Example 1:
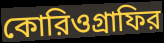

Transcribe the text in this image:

কোরিওগ্রাফির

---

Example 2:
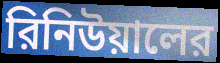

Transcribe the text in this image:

রিনিউয়ালের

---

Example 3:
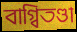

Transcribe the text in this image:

বাগ্বিতণ্ডা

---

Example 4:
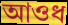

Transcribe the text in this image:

আওধ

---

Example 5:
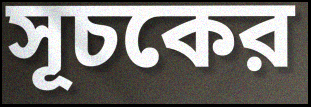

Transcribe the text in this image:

সূচকের